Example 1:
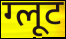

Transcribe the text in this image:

ग्लूट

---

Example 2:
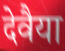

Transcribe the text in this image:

देवैया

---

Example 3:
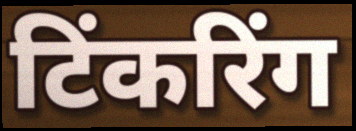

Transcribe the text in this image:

टिंकरिंग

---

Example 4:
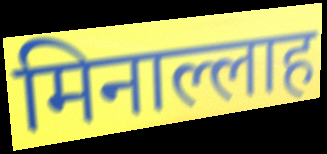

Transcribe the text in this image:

मिनाल्लाह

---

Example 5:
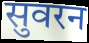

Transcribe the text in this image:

सुवरन